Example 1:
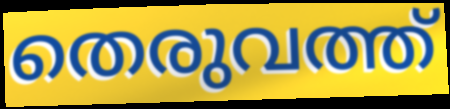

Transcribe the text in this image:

തെരുവത്ത്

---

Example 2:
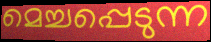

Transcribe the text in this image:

മെച്ചപ്പെടുന്ന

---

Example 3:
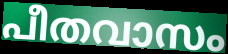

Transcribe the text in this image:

പീതവാസം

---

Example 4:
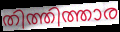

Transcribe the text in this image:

തിത്തിത്താര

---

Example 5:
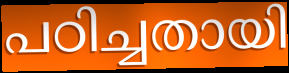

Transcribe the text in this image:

പഠിച്ചതായി